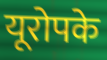
यूरोपके